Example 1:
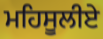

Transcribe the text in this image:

ਮਹਿਸੂਲੀਏ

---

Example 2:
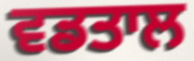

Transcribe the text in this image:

ਵਡਤਾਲ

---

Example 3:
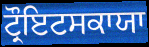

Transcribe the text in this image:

ਟ੍ਰੌਇਟਸਕਾਯਾ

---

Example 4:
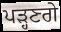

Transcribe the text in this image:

ਪੜ੍ਹਣਗੇ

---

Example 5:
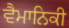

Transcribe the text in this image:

ਵੈਮਾਨਿਕੀ